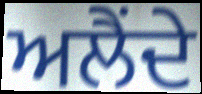
ਅਲੈਂਦੇ